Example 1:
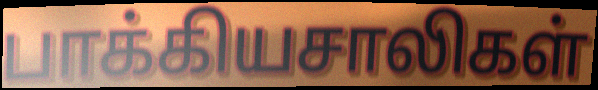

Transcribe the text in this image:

பாக்கியசாலிகள்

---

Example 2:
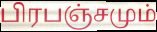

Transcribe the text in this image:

பிரபஞ்சமும்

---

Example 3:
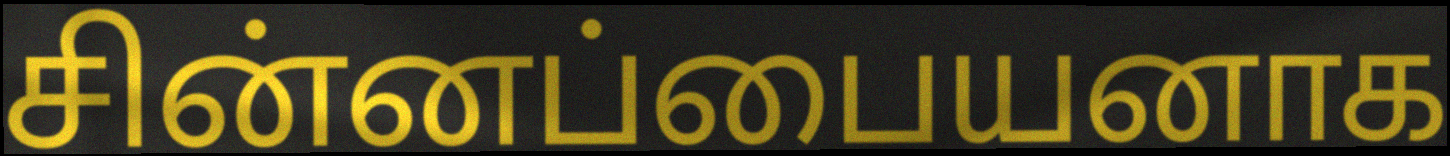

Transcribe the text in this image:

சின்னப்பையனாக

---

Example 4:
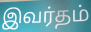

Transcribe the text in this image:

இவர்தம்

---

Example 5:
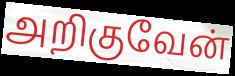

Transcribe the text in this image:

அறிகுவேன்